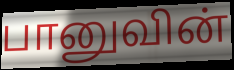
பானுவின்